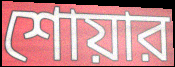
শোয়ার